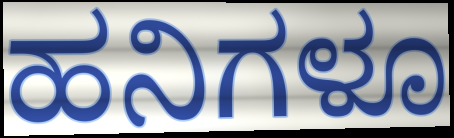
ಹನಿಗಳೂ